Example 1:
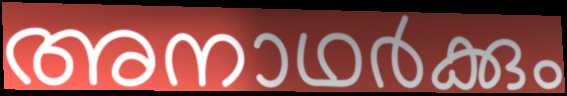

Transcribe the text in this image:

അനാഥർക്കും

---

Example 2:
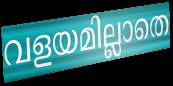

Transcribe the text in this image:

വളയമില്ലാതെ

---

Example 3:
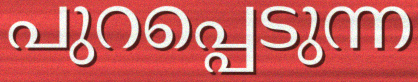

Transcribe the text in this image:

പുറപ്പെടുന്ന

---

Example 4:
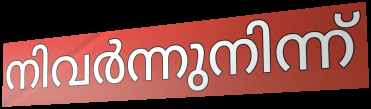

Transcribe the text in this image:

നിവർന്നുനിന്ന്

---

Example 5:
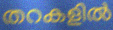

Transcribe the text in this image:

തറകളിൽ